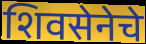
शिवसेनेचे